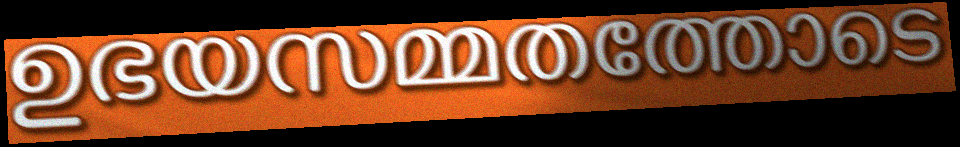
ഉഭയസമ്മതത്തോടെ